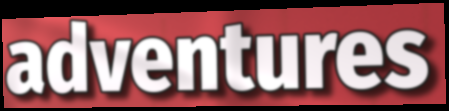
adventures